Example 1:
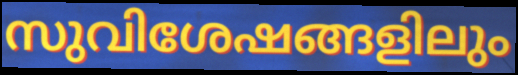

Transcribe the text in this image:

സുവിശേഷങ്ങളിലും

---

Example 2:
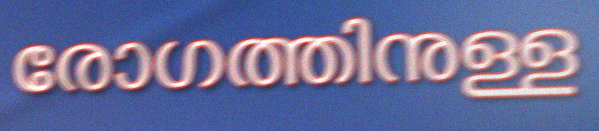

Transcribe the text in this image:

രോഗത്തിനുള്ള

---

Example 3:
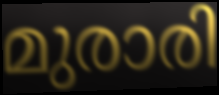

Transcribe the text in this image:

മുരാരി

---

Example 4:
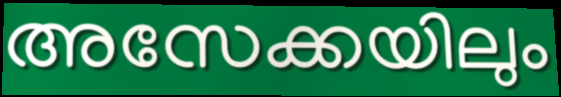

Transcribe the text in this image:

അസേക്കയിലും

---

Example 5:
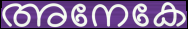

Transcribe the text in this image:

അനേകേ